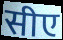
सीए